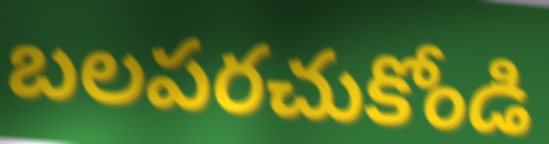
బలపరచుకోండి